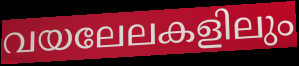
വയലേലകളിലും